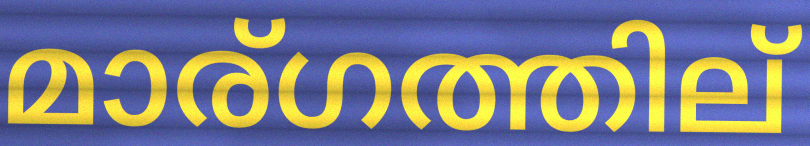
മാര്ഗത്തില്